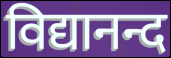
विद्यानन्द